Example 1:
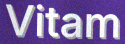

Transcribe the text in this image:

Vitam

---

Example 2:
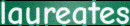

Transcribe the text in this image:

laureates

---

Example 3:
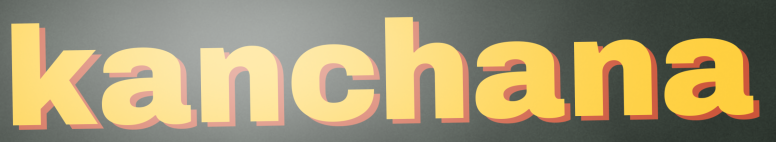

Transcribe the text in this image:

kanchana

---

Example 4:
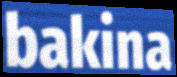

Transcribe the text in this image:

bakina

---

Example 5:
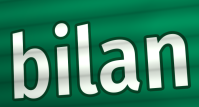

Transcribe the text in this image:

bilan